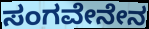
ಸಂಗವೇನೇನ